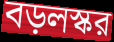
বড়লস্কর